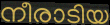
നീരാടിയ